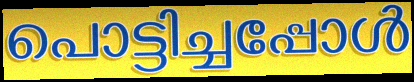
പൊട്ടിച്ചപ്പോൾ